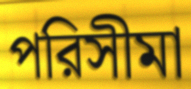
পরিসীমা